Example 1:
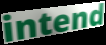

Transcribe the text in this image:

intend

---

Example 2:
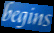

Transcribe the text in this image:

begins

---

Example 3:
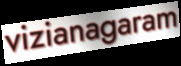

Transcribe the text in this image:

vizianagaram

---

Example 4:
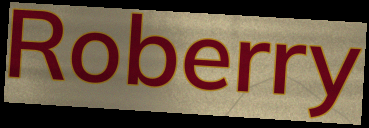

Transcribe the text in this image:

Roberry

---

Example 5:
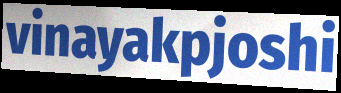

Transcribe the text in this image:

vinayakpjoshi